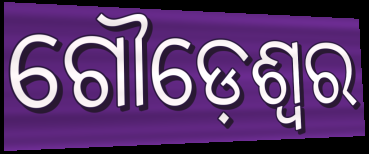
ଗୌଡ଼େଶ୍ୱର